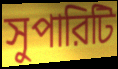
সুপারিটি